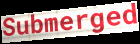
Submerged